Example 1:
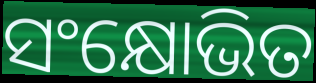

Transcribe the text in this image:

ସଂକ୍ଷୋଭିତ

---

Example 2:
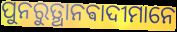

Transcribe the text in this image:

ପୁନରୁତ୍ଥାନଵାଦୀମାନେ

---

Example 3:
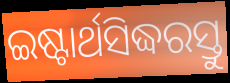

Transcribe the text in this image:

ଇଷ୍ଟାର୍ଥସିଦ୍ଧରସ୍ତୁ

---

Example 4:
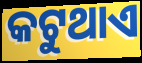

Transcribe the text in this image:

କଟୁଥାଏ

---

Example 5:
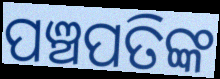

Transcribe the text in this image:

ପଞ୍ଚପତିଙ୍କ